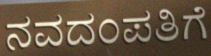
ನವದಂಪತಿಗೆ